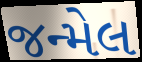
જન્મેલ